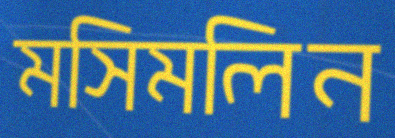
মসিমলিন